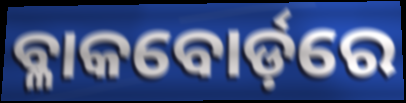
ବ୍ଳାକବୋର୍ଡ଼ରେ